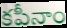
కపీనాం